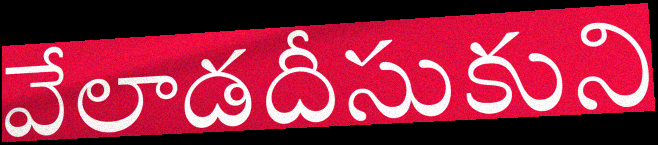
వేలాడదీసుకుని